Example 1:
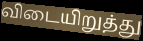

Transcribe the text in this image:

விடையிறுத்து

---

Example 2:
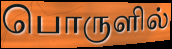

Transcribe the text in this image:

பொருளில்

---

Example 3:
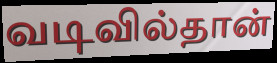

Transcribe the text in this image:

வடிவில்தான்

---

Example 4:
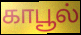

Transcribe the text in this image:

காபூல்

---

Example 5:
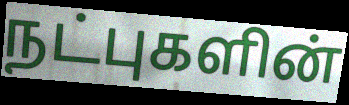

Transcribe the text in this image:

நட்புகளின்